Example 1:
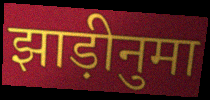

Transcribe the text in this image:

झाड़ीनुमा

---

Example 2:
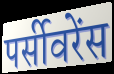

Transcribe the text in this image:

पर्सीवरेंस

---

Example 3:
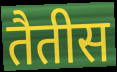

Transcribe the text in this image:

तैतीस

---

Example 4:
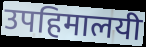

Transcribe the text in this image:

उपहिमालयी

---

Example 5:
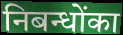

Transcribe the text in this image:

निबन्धोंका